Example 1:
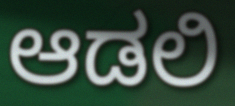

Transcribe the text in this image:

ಆಡಲಿ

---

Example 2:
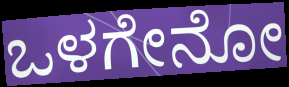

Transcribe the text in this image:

ಒಳಗೇನೋ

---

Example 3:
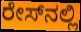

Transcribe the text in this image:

ರೇಸ್‍ನಲ್ಲಿ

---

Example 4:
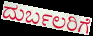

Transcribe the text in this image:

ದುರ್ಬಲರಿಗೆ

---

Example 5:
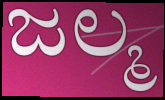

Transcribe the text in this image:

ಜಲ್ಮ